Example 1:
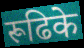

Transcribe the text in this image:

रूढिके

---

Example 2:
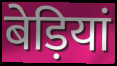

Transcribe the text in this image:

बेड़ियां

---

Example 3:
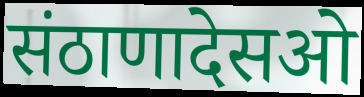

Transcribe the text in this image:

संठाणादेसओ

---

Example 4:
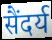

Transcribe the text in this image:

सैंदर्य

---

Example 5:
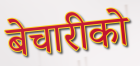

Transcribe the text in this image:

बेचारीको